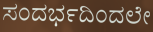
ಸಂದರ್ಭದಿಂದಲೇ